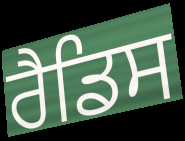
ਰੈਡਿਸ